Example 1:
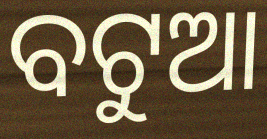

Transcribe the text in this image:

ବଟୁଆ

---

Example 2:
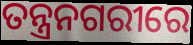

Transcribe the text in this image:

ତନ୍ତ୍ରନଗରୀରେ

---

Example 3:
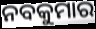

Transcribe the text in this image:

ନବକୁମାର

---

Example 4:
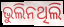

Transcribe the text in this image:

ଭୁଲିନଥିଲି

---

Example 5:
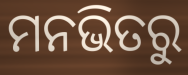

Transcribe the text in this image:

ମନଭିତରୁ